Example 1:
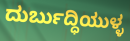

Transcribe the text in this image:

ದುರ್ಬುದ್ಧಿಯುಳ್ಳ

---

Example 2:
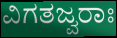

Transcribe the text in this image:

ವಿಗತಜ್ವರಾಃ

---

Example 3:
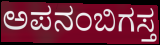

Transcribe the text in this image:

ಅಪನಂಬಿಗಸ್ತ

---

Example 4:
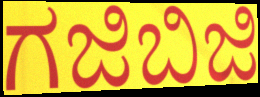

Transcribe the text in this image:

ಗಜಿಬಿಜಿ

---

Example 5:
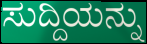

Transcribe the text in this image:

ಸುದ್ದಿಯನ್ನು